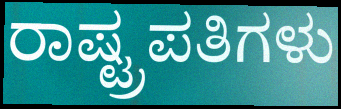
ರಾಷ್ಟ್ರಪತಿಗಳು